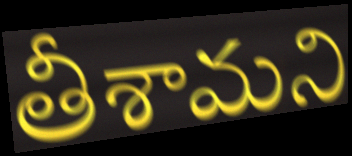
తీశామని